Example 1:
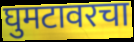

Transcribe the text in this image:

घुमटावरचा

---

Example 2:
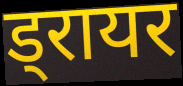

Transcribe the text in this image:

ड्रायर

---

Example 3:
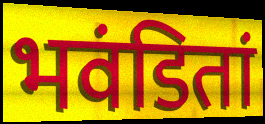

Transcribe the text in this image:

भवंडितां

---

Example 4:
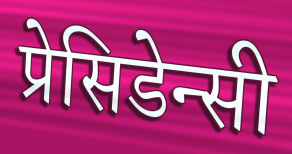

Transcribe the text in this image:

प्रेसिडेन्सी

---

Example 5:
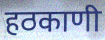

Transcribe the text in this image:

हठकाणी